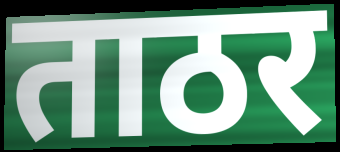
ताठर